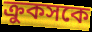
ক্রুকসকে